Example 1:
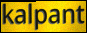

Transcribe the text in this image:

kalpant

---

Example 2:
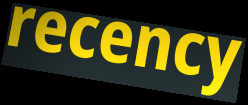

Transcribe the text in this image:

recency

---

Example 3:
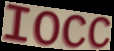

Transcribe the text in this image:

IOCC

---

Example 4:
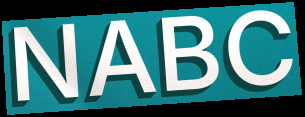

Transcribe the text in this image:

NABC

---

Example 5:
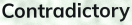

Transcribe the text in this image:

Contradictory